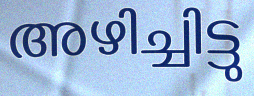
അഴിച്ചിട്ടു